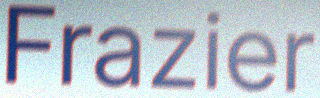
Frazier